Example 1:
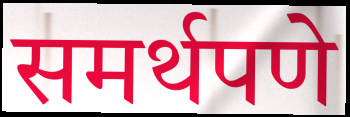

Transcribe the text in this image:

समर्थपणे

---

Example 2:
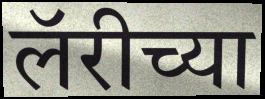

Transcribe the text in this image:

लॅरीच्या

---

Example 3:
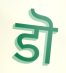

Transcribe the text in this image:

डॊ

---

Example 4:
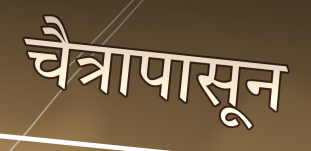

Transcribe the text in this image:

चैत्रापासून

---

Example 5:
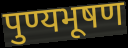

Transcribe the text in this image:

पुण्यभूषण